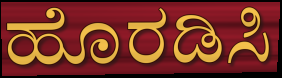
ಹೊರಡಿಸಿ